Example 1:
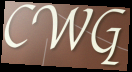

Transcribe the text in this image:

CWG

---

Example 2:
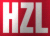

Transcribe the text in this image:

HZL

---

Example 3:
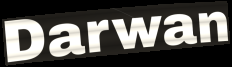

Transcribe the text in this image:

Darwan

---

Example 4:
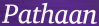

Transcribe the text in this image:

Pathaan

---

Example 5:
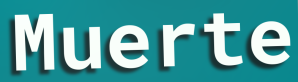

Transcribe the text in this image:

Muerte